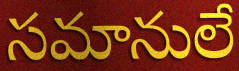
సమానులే